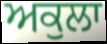
ਅਕੁਲਾ